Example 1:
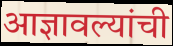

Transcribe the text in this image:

आज्ञावल्यांची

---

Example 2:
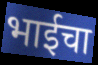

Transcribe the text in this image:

भाईचा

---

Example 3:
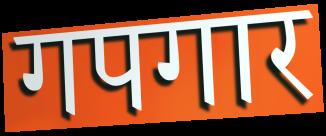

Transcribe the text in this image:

गपगार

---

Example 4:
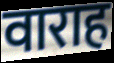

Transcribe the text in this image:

वाराह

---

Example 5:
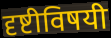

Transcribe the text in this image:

दृष्टीविषयी